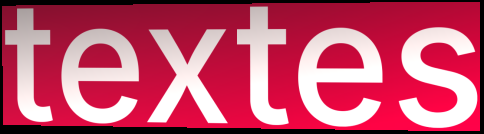
textes